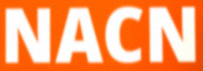
NACN